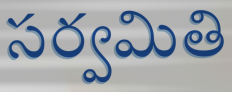
సర్వమితి